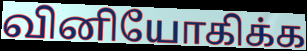
வினியோகிக்க